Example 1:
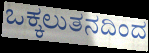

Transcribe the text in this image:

ಒಕ್ಕಲುತನದಿಂದ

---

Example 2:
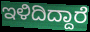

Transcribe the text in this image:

ಇಳಿದಿದ್ದಾರೆ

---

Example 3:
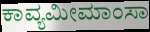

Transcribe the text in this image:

ಕಾವ್ಯಮೀಮಾಂಸಾ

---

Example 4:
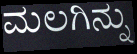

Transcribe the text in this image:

ಮಲಗಿನ್ನು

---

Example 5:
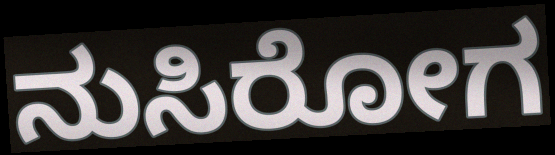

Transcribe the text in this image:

ನುಸಿರೋಗ